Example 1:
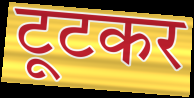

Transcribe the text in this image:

टूटकर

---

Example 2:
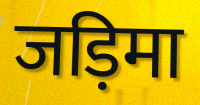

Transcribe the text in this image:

जड़िमा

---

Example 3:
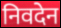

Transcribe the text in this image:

निवदेन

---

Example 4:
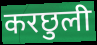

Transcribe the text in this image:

करछुली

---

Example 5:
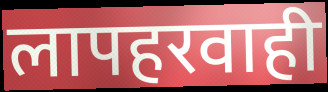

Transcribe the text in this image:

लापहरवाही